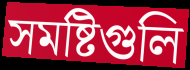
সমষ্টিগুলি